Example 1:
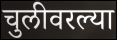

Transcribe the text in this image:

चुलीवरल्या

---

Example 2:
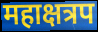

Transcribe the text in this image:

महाक्षत्रप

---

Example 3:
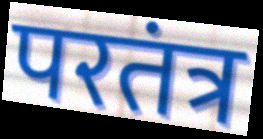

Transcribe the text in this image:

परतंत्र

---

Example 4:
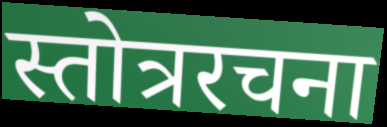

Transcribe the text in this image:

स्तोत्ररचना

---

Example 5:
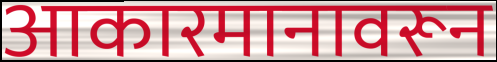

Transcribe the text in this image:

आकारमानावरून